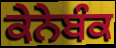
ਕੇਨੇਬੰਕ